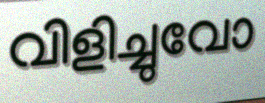
വിളിച്ചുവോ